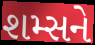
શમ્સને